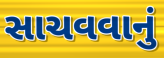
સાચવવાનું